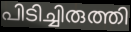
പിടിച്ചിരുത്തി